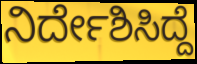
ನಿರ್ದೇಶಿಸಿದ್ದೆ